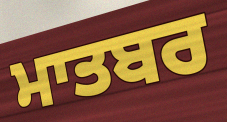
ਮਾਤਬਰ